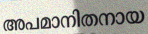
അപമാനിതനായ